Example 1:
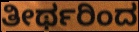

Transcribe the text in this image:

ತೀರ್ಥರಿಂದ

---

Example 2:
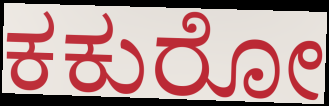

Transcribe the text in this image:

ಕಕುರೋ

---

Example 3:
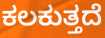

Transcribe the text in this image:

ಕಲಕುತ್ತದೆ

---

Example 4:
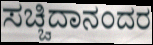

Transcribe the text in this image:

ಸಚ್ಚಿದಾನಂದರ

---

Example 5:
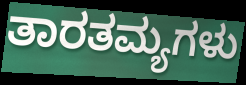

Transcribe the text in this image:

ತಾರತಮ್ಯಗಳು